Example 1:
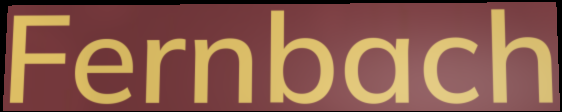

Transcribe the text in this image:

Fernbach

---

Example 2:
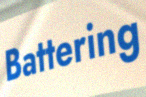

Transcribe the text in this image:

Battering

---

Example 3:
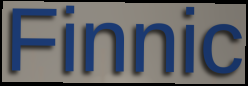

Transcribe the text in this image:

Finnic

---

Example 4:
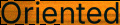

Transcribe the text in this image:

Oriented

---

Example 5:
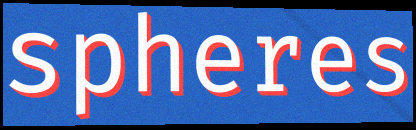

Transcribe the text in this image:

spheres